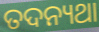
ତଦନ୍ୟଥା